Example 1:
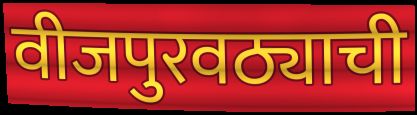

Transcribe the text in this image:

वीजपुरवठ्याची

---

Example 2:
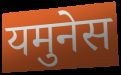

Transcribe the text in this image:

यमुनेस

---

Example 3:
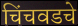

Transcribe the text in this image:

चिंचवडचे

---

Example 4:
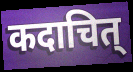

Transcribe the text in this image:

कदाचित्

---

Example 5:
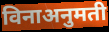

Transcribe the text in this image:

विनाअनुमती